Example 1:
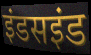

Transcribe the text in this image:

इंडसइंड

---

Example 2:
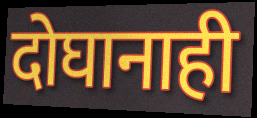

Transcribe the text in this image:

दोघानाही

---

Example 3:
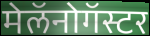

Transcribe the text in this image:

मेलॅनोगॅस्टर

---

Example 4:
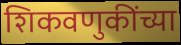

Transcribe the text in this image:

शिकवणुकींच्या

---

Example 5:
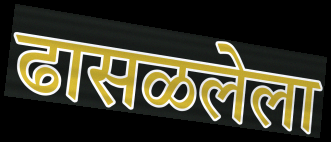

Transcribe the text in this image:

ढासळलेला